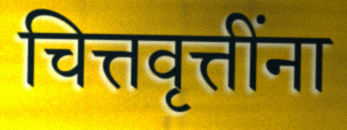
चित्तवृत्तींना